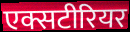
एक्सटीरियर